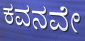
ಕವನವೇ